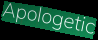
Apologetic